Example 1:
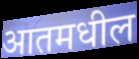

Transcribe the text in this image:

आतमधील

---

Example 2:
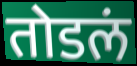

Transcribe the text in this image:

तोडलं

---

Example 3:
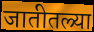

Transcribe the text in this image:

जातीतल्या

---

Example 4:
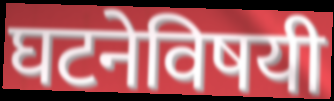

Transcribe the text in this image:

घटनेविषयी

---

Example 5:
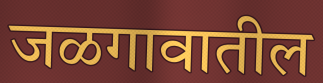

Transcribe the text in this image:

जळगावातील